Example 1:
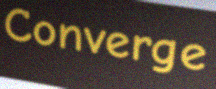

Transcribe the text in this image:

Converge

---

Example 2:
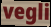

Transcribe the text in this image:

vegli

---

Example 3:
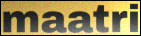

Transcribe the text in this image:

maatri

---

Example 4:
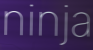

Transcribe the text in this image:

ninja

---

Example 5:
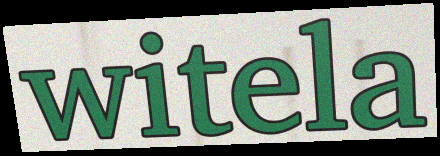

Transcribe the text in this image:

witela